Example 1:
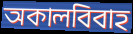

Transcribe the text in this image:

অকালবিবাহ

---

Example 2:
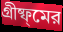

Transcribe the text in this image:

গ্রীষ্ফ্মের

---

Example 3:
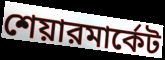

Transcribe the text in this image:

শেয়ারমার্কেট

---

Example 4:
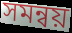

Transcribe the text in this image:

সমন্বয়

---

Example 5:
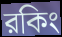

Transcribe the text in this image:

রকিং